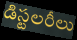
డిస్టలరీలు